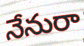
నేనురా